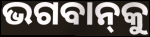
ଭଗବାନ୍‌କୁ